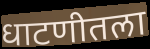
धाटणीतला